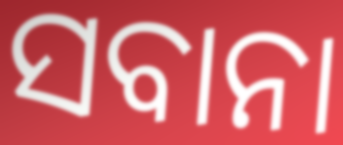
ସବାନା